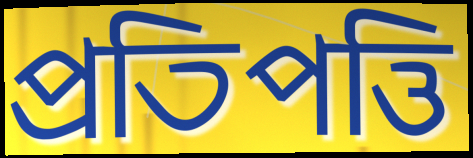
প্রতিপত্তি